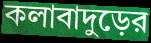
কলাবাদুড়ের